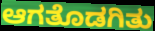
ಆಗತೊಡಗಿತು